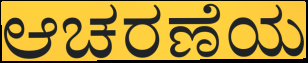
ಆಚರಣೆಯ